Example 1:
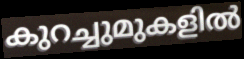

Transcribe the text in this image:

കുറച്ചുമുകളിൽ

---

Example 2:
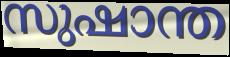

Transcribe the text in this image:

സുഷാന്ത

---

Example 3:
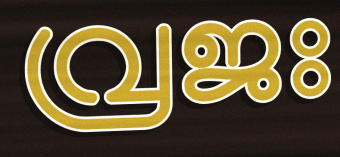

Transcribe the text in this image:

വ്രജഃ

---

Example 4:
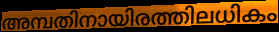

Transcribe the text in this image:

അമ്പതിനായിരത്തിലധികം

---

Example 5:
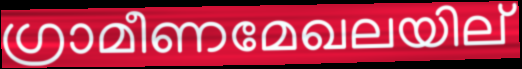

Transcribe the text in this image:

ഗ്രാമീണമേഖലയില്